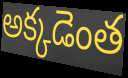
అక్కడెంత